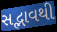
સદ્ભાવથી